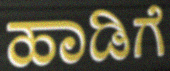
ಹಾಡಿಗೆ